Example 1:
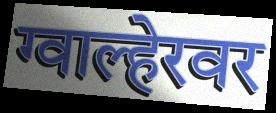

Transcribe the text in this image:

ग्वाल्हेरवर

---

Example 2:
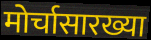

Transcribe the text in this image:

मोर्चासारख्या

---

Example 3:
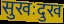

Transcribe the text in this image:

सुखःदुख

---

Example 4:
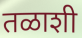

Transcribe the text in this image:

तळाशी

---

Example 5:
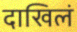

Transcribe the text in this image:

दाखिलं